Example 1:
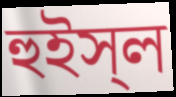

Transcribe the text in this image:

হুইস্‌ল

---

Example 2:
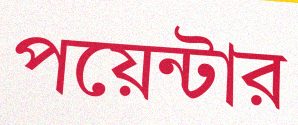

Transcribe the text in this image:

পয়েন্টার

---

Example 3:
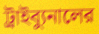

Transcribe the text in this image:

ট্রাইব্যুনালের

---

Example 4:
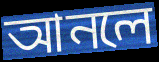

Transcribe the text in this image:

আনলে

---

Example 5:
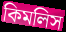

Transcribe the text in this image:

কিমলিস